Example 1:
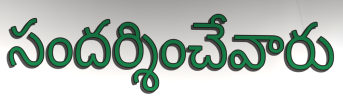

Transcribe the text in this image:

సందర్శించేవారు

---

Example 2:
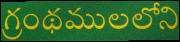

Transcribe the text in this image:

గ్రంథములలోని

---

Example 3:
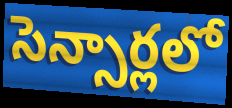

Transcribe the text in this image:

సెన్సార్లలో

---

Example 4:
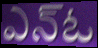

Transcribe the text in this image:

ఎన్ఓ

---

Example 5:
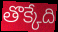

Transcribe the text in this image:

తొక్కేది